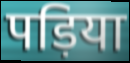
पड़िया